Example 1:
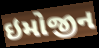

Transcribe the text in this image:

ઇમોજીન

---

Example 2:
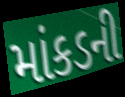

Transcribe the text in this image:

માંકડની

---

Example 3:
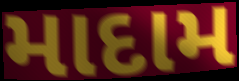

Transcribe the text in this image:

માદામ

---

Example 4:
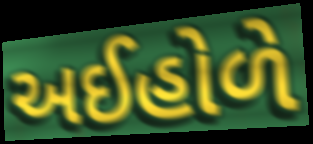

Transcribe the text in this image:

અઈહોળે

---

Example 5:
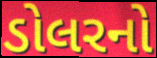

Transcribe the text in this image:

ડોલરનો